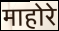
माहोरे